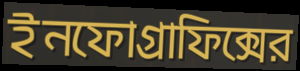
ইনফোগ্রাফিক্সের